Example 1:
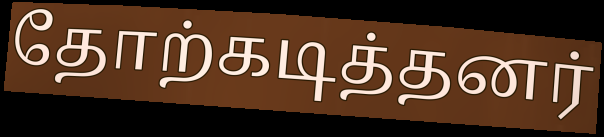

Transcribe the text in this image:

தோற்கடித்தனர்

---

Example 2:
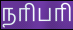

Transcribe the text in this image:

நரிபரி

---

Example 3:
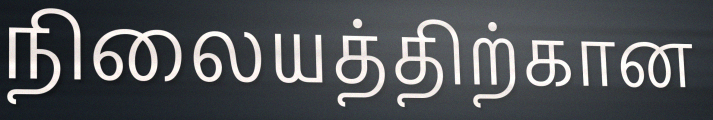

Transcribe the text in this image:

நிலையத்திற்கான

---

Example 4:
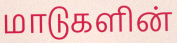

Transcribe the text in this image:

மாடுகளின்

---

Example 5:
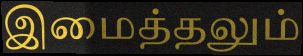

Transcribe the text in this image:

இமைத்தலும்